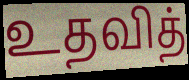
உதவித்